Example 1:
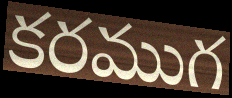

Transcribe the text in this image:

కరముగ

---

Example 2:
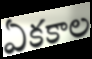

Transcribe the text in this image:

ఏకకాల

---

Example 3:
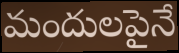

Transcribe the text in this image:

మందులపైనే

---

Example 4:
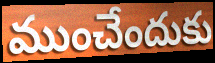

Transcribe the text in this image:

ముంచేందుకు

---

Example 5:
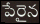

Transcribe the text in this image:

పేరైన